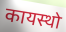
कायस्थो